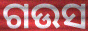
ଗଉସ